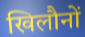
खिलौनों